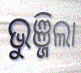
ଭୁଞ୍ଜିଲା